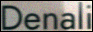
Denali